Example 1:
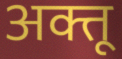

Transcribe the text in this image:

अक्तू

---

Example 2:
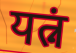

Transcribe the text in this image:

यत्नं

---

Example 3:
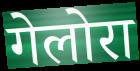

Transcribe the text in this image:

गेलोरा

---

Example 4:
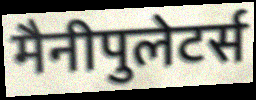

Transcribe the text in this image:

मैनीपुलेटर्स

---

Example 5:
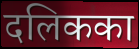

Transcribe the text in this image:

दलिकका